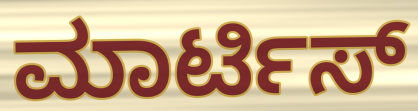
ಮಾರ್ಟಿಸ್